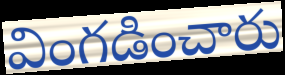
వింగడించారు